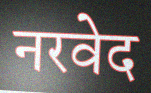
नरवेद